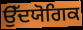
ਉੱਦਯੋਗਿਕ